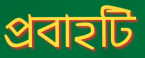
প্রবাহটি